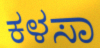
ಕಳಸಾ